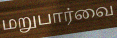
மறுபார்வை